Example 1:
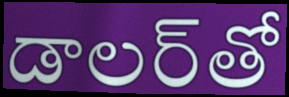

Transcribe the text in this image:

డాలర్‌తో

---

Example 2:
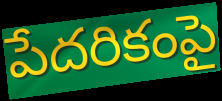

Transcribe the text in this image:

పేదరికంపై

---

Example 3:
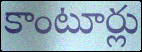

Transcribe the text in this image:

కాంటూర్లు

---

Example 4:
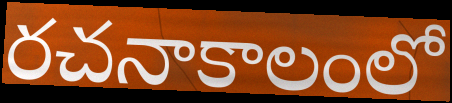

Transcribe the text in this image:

రచనాకాలంలో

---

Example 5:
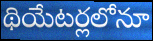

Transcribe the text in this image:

థియేటర్లలోనూ